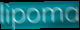
lipoma